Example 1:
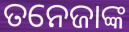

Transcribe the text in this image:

ତନେଜାଙ୍କ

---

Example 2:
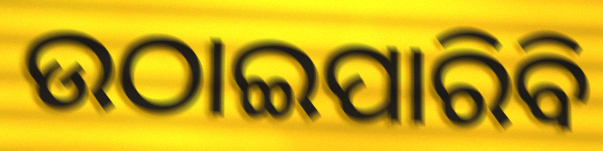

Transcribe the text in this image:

ଉଠାଇପାରିବି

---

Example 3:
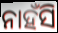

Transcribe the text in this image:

ନାହଁସି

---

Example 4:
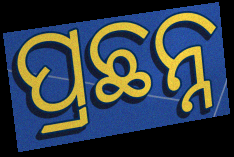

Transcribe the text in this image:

ପ୍ରଛନ୍ନ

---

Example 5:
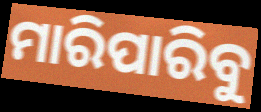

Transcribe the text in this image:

ମାରିପାରିବୁ